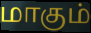
மாகும்